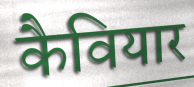
कैवियार